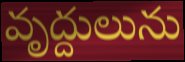
వృద్దులును